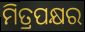
ମିତ୍ରପକ୍ଷର